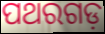
ପଥରଗଡ଼